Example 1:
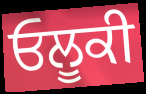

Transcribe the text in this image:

ਓਲੂਕੀ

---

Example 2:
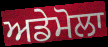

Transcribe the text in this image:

ਅਡੇਮੋਲਾ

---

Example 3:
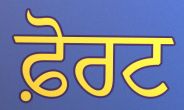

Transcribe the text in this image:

ਫ਼ੋਰਟ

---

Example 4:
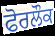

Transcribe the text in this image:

ਫੋਰਲੌਕ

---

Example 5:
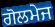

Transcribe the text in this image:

ਗੋਲਮੇਜ